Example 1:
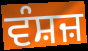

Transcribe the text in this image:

ਵੰਸ਼ਜ਼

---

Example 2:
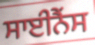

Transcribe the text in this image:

ਸਾਈਨੈਂਸ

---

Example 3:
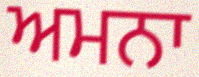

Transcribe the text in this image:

ਅਮਨਾ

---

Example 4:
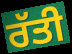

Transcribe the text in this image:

ਰੱਤੀ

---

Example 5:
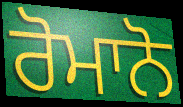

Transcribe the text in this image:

ਰੋਮਾਨੋ